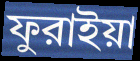
ফুরাইয়া